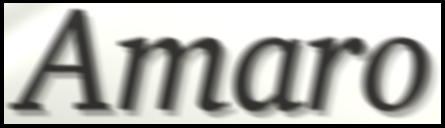
Amaro